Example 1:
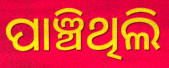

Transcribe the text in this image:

ପାଞ୍ଚିଥିଲି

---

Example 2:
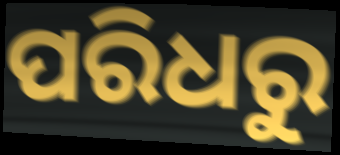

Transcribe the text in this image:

ପରିଧରୁ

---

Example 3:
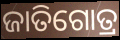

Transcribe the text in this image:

ଜାତିଗୋତ୍ର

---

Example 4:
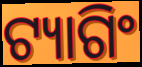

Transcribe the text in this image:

ଟ୍ୟାଗିଂ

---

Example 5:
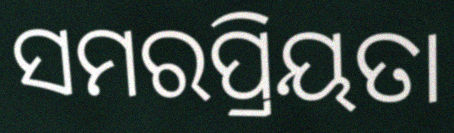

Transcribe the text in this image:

ସମରପ୍ରିୟତା